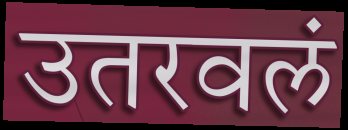
उतरवलं